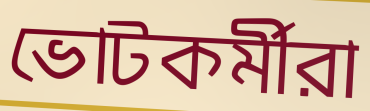
ভোটকর্মীরা